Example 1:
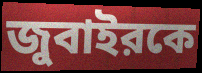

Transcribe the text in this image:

জুবাইরকে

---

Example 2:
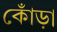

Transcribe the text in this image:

কোঁড়া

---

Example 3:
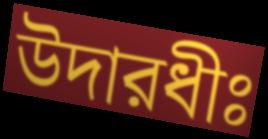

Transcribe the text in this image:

উদারধীঃ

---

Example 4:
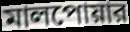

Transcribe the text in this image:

মালপোয়ার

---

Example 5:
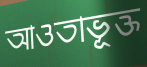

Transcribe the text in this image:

আওতাভূক্ত